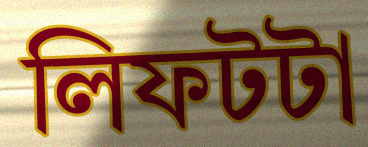
লিফটটা